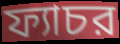
ফ্যাচর